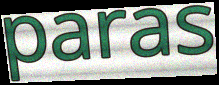
paras